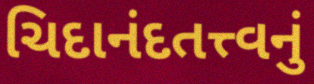
ચિદાનંદતત્ત્વનું